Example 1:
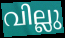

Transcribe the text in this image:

വില്ലു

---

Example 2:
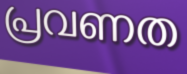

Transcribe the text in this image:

പ്രവണത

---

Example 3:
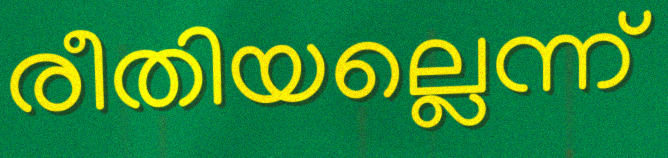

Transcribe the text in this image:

രീതിയല്ലെന്ന്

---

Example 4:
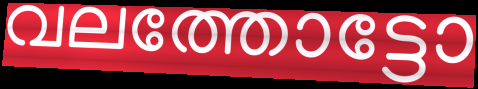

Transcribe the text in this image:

വലത്തോട്ടോ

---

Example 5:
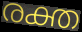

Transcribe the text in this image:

രക്ത